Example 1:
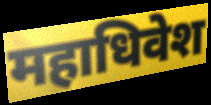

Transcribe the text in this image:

महाधिवेश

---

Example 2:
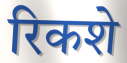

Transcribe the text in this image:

रिकशे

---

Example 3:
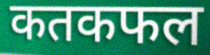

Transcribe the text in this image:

कतकफल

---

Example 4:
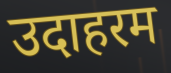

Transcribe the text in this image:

उदाहरम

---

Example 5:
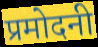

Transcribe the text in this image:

प्रमोदनी